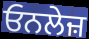
ਓਨਲੇਜ਼